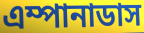
এম্পানাডাস